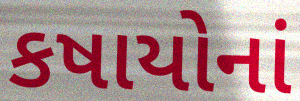
કષાયોનાં